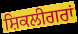
ਸ਼ਿਕਲੀਗਰਾਂ